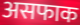
असफाक